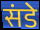
संडे